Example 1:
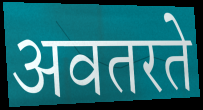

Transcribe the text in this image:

अवतरते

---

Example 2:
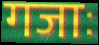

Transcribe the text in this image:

गजाः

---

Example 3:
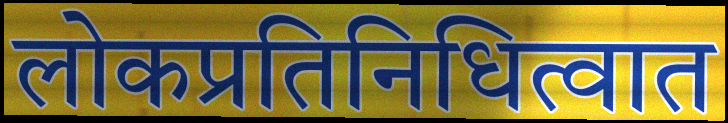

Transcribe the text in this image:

लोकप्रतिनिधित्वात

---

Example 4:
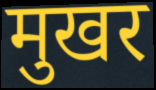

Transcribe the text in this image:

मुखर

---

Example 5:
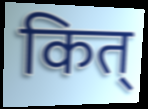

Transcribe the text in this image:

कित्